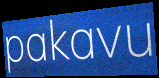
pakavu